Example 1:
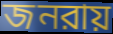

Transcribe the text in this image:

জনরায়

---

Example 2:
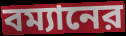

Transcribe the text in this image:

বম্যানের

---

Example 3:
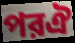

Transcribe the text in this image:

পরঐ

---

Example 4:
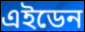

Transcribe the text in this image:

এইডেন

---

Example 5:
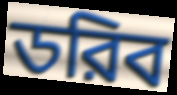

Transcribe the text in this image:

ডরিব